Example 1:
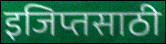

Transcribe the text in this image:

इजिप्तसाठी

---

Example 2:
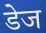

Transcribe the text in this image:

डेज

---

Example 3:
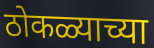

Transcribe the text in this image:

ठोकळ्याच्या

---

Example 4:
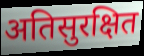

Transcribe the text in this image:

अतिसुरक्षित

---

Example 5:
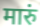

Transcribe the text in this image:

मारुं